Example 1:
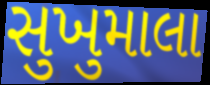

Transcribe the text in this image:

સુખુમાલા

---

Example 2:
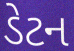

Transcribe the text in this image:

ડેટન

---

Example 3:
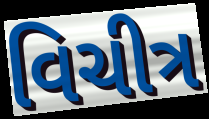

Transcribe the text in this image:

વિચીત્ર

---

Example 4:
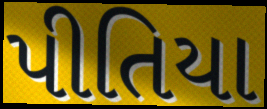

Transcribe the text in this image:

પીતિયા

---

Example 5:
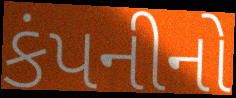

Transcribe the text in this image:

કંપનીનો